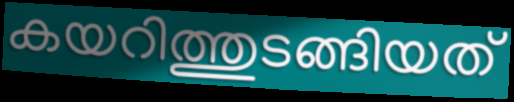
കയറിത്തുടങ്ങിയത്